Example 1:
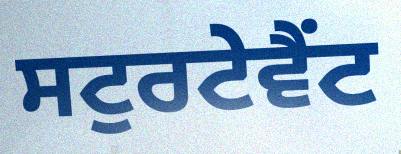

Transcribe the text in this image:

ਸਟੁਰਟੇਵੈਂਟ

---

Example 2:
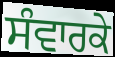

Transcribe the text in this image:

ਸੰਵਾਰਕੇ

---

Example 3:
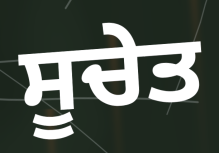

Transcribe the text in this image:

ਸੂਚੇਤ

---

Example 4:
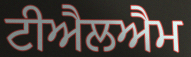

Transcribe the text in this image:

ਟੀਐਲਐਮ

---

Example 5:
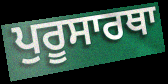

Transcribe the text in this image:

ਪੁਰੂਸਾਰਥਾ